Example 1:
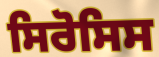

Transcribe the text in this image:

ਸਿਰੋਸਿਸ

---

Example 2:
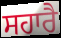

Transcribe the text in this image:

ਸਹਾਰੈ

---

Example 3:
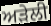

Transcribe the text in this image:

ਅੜੇਲੀ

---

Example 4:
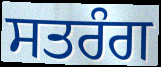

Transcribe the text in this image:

ਸਤਰੰਗ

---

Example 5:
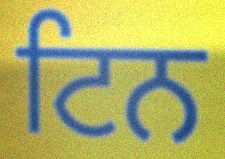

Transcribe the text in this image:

ਟਿਨ